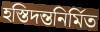
হস্তিদন্তনির্মিত